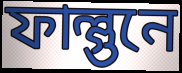
ফাল্গুনে